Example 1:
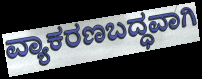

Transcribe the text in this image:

ವ್ಯಾಕರಣಬದ್ಧವಾಗಿ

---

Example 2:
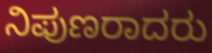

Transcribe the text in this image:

ನಿಪುಣರಾದರು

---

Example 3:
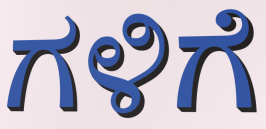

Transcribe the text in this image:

ಗಳಿಗೆ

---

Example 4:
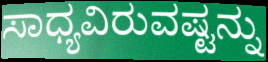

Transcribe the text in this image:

ಸಾಧ್ಯವಿರುವಷ್ಟನ್ನು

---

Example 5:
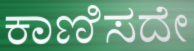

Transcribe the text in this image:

ಕಾಣಿಸದೇ